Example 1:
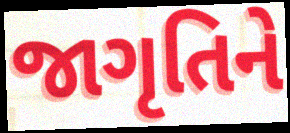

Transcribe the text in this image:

જાગૃતિને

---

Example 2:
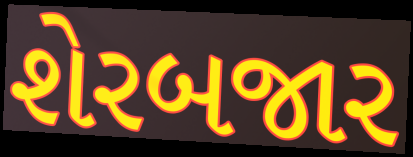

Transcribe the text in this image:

શેરબજાર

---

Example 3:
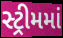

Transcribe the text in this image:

સ્ટ્રીમમાં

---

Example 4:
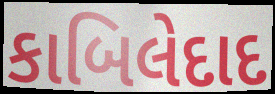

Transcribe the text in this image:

કાબિલેદાદ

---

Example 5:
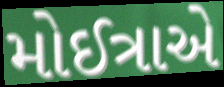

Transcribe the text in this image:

મોઈત્રાએ